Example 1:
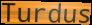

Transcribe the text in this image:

Turdus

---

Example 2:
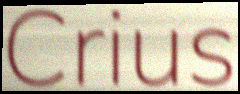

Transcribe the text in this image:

Crius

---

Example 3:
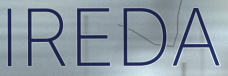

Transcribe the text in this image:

IREDA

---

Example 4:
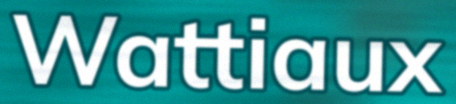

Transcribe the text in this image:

Wattiaux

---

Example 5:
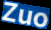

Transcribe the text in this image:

Zuo